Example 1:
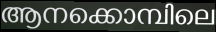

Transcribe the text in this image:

ആനക്കൊമ്പിലെ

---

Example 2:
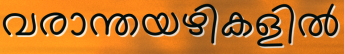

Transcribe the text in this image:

വരാന്തയഴികളിൽ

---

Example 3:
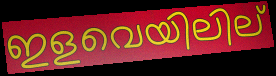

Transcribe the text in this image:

ഇളവെയിലില്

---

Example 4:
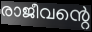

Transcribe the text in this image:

രാജീവന്റെ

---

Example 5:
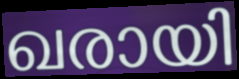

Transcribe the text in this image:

ഖരായി